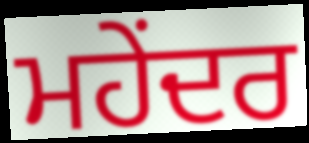
ਮਹੇਂਦਰ